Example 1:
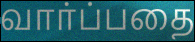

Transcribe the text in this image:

வார்ப்பதை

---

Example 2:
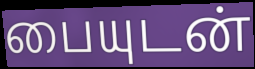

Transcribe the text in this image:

பையுடன்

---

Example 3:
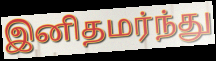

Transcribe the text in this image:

இனிதமர்ந்து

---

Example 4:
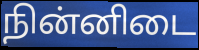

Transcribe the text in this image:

நின்னிடை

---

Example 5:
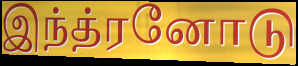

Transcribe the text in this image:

இந்த்ரனோடு